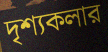
দৃশ্যকলার